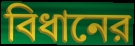
বিধানের